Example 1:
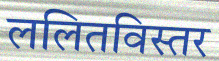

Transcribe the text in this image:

ललितविस्तर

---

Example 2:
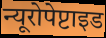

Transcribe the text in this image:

न्यूरोपेप्टाइड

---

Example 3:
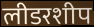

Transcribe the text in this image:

लीडरशीप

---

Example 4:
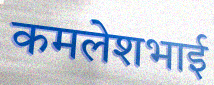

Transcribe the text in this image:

कमलेशभाई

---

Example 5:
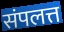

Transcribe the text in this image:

संपलत्त